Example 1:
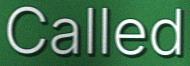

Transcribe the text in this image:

Called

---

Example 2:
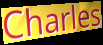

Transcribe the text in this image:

Charles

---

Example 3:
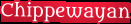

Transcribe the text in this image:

Chippewayan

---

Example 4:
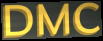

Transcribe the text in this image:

DMC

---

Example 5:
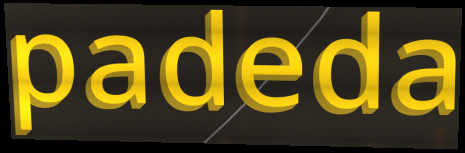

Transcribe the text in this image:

padeda